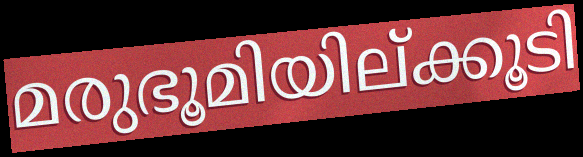
മരുഭൂമിയില്ക്കൂടി